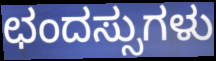
ಛಂದಸ್ಸುಗಳು